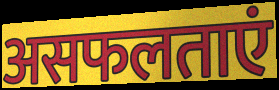
असफलताएं